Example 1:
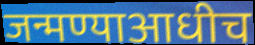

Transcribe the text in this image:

जन्मण्याआधीच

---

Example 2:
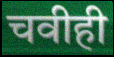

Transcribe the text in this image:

चवीही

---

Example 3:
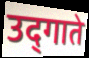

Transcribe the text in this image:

उद्‌गाते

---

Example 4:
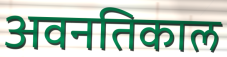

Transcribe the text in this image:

अवनतिकाल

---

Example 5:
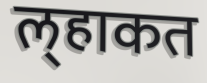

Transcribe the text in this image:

ल्हाकत